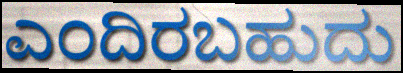
ಎಂದಿರಬಹುದು